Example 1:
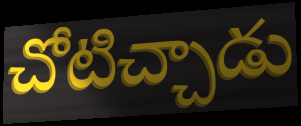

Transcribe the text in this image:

చోటిచ్చాడు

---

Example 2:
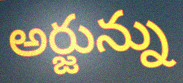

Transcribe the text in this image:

అర్జున్ను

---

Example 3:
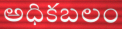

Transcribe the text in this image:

అధికబలం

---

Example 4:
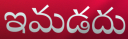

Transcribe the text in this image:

ఇమడదు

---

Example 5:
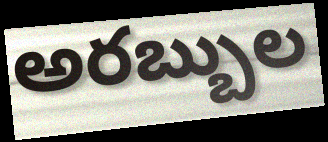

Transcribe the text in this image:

అరబ్బుల